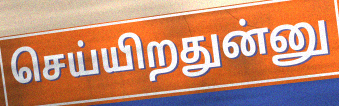
செய்யிறதுன்னு